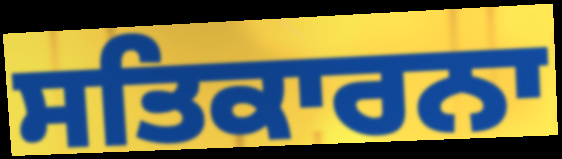
ਸਤਿਕਾਰਨਾ